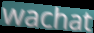
wachat